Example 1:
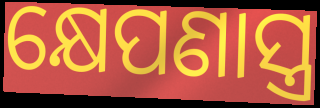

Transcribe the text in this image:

କ୍ଷେପଣାସ୍ତ୍ର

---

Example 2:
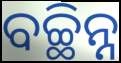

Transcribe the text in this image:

ବଚ୍ଛିନ୍ନ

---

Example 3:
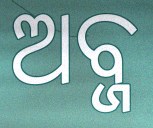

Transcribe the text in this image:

ଅବ୍ଜ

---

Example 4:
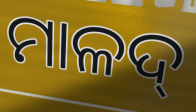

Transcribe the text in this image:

ମାଳଦ୍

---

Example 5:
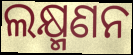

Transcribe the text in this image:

ଲକ୍ଷ୍ମଣନ